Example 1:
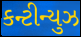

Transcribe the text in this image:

કન્ટીન્યુઝ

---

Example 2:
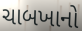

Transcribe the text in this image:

ચાબખાનો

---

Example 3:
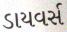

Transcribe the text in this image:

ડાયવર્સ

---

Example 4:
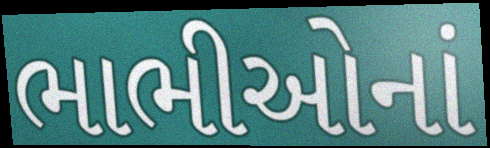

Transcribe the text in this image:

ભાભીઓનાં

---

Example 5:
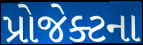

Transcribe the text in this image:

પ્રોજેક્ટના